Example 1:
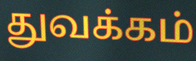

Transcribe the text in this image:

துவக்கம்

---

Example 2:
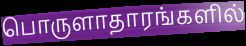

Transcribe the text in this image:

பொருளாதாரங்களில்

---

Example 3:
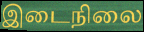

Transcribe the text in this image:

இடைநிலை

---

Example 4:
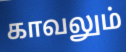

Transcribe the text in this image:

காவலும்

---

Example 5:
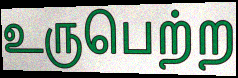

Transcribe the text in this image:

உருபெற்ற